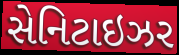
સેનિટાઇઝર